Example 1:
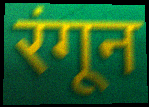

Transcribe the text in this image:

रंगून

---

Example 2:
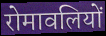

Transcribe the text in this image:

रोमावलियों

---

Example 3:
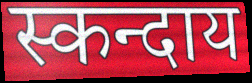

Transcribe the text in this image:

स्कन्दाय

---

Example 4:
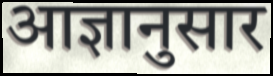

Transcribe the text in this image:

आज्ञानुसार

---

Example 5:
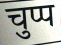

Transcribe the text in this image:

चुप्प